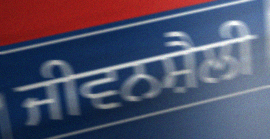
ਜੀਵਨਸ਼ੈਲੀ